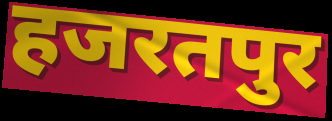
हजरतपुर